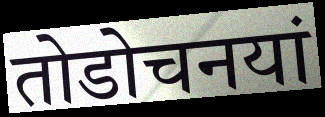
तोडोचनयां